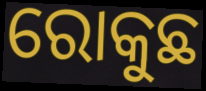
ରୋକୁଛ